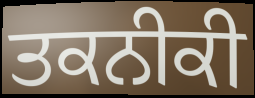
ਤਕਨੀਕੀ